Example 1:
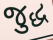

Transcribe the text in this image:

જુદ્ધ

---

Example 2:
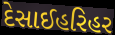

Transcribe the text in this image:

દેસાઈહરિહર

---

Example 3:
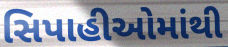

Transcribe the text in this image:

સિપાહીઓમાંથી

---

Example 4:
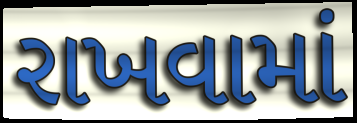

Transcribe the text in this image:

રાખવામાં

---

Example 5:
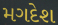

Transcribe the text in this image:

મગદેશ